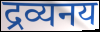
द्रव्यनय